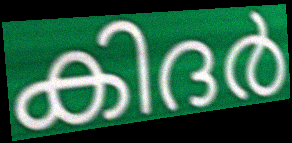
കിദർ